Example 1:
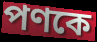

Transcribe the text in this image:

পণকে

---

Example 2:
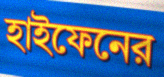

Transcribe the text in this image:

হাইফেনের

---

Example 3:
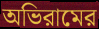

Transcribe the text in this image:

অভিরামের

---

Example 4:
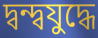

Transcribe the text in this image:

দ্বন্দ্বযুদ্ধে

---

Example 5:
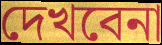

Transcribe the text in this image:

দেখবেনা